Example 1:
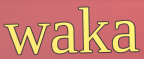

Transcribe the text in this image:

waka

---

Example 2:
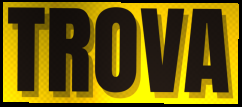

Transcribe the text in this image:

TROVA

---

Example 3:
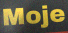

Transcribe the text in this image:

Moje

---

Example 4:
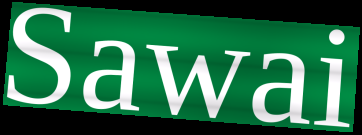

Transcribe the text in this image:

Sawai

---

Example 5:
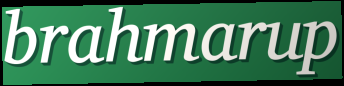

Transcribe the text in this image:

brahmarup